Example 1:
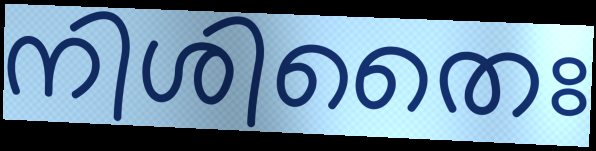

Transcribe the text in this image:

നിശിതൈഃ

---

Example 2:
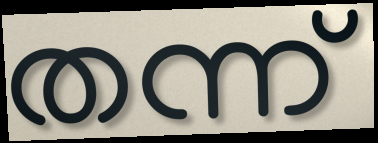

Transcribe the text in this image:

തന്ന്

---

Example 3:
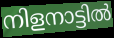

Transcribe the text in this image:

നിളനാട്ടിൽ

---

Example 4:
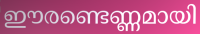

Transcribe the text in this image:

ഈരണ്ടെണ്ണമായി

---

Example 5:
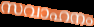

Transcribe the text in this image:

സവാഹനം